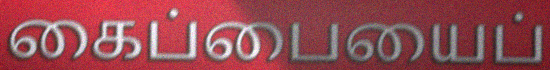
கைப்பையைப்